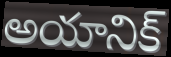
అయానిక్